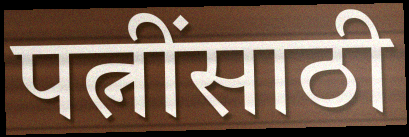
पत्नींसाठी